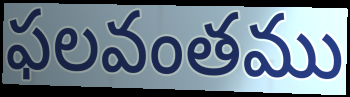
ఫలవంతము